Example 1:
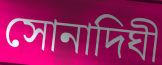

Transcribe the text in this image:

সোনাদিঘী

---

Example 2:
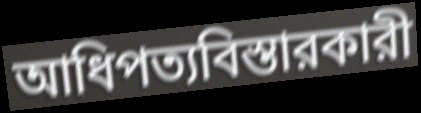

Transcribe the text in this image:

আধিপত্যবিস্তারকারী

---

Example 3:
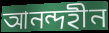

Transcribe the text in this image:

আনন্দহীন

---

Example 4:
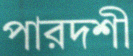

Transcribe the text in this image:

পারদশী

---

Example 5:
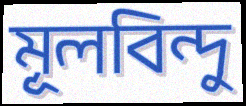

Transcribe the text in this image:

মূলবিন্দু